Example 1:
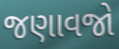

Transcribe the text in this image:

જણાવજો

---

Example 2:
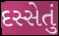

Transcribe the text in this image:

દસ્સેતું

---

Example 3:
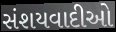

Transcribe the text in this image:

સંશયવાદીઓ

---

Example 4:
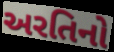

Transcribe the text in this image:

અરતિનો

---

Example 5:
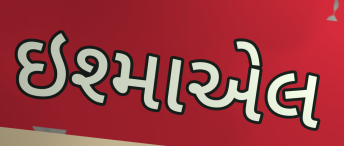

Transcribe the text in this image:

ઇશ્માએલ